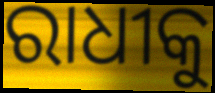
ରାଧୀକୁ